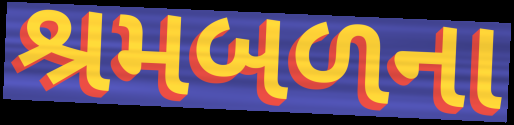
શ્રમબળના